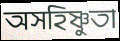
অসহিষ্ণুতা